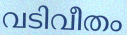
വടിവീതം